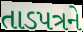
તાડપત્રને